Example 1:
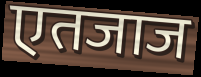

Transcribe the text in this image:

एतजाज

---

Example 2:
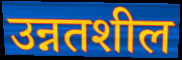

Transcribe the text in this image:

उन्नतशील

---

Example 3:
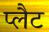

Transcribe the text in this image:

प्लैट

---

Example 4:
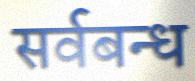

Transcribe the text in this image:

सर्वबन्ध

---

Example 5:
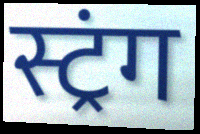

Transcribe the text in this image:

स्ट्रंग